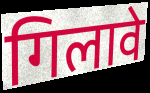
गिलावे